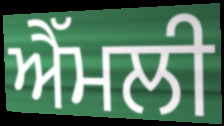
ਐੱਮਲੀ